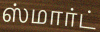
ஸ்மார்ட்